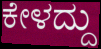
ಕೇಳದ್ದು